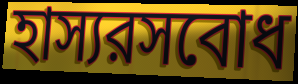
হাস্যরসবোধ